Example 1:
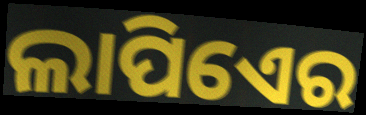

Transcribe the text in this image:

ଲାପିଏେର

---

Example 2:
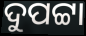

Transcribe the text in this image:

ଦୁପଟ୍ଟା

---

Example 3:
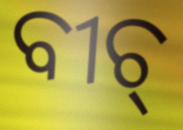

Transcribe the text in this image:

ବୀଚ୍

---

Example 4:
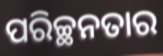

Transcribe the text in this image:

ପରିଚ୍ଛନତାର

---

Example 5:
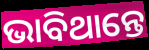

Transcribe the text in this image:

ଭାବିଥାନ୍ତେ